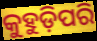
କୁହୁଡ଼ିପରି